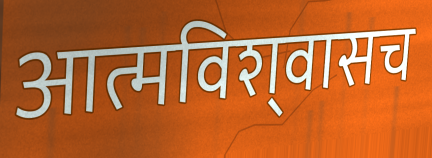
आत्मविश्वासच